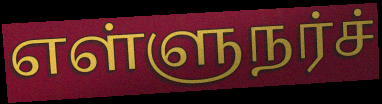
எள்ளுநர்ச்